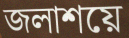
জলাশয়ে